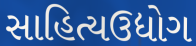
સાહિત્યઉદ્યોગ